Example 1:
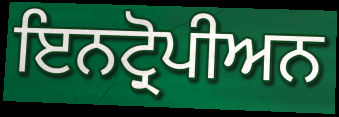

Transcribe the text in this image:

ਇਨਟ੍ਰੋਪੀਅਨ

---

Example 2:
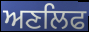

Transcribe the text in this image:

ਅਣਲਿਫ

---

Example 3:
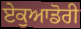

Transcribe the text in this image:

ਏਕੁਆਡੋਰੀ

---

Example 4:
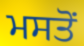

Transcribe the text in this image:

ਮਸਤੋਂ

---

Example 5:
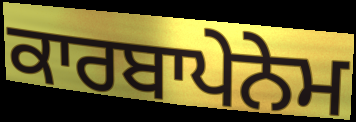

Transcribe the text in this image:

ਕਾਰਬਾਪੇਨੇਮ